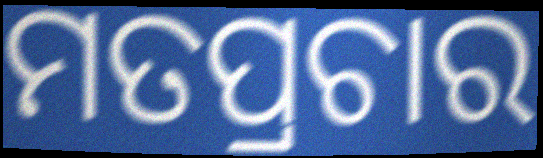
ମତପ୍ରଚାର